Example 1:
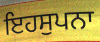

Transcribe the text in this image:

ਇਹਸੁਪਨਾ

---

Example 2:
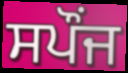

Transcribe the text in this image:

ਸਪੌਂਜ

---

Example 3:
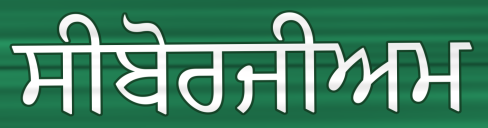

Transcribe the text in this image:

ਸੀਬੋਰਜੀਅਮ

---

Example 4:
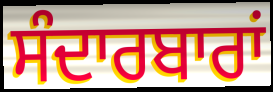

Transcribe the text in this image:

ਸੰਦਾਰਬਾਰਾਂ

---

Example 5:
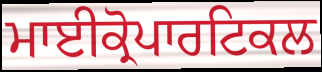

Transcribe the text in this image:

ਮਾਈਕ੍ਰੋਪਾਰਟਿਕਲ